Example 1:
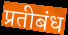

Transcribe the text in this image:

प्रतीबंध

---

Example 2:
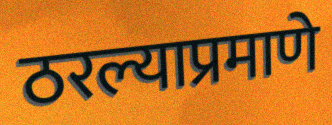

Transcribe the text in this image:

ठरल्याप्रमाणे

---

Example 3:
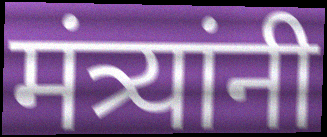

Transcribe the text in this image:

मंत्र्यांनी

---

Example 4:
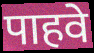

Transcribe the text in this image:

पाहवे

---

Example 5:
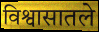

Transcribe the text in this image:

विश्वासातले